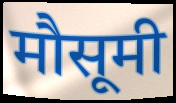
मौसूमी